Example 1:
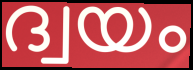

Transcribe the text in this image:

ദ്വയം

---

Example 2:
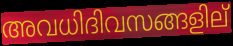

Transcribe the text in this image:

അവധിദിവസങ്ങളില്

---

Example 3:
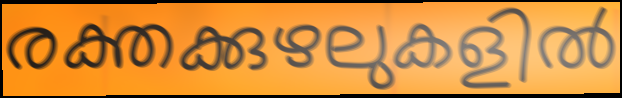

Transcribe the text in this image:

രക്തക്കുഴലുകളിൽ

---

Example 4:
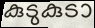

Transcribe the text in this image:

കുടുകുടാ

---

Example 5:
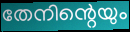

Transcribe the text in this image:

തേനിന്റെയും